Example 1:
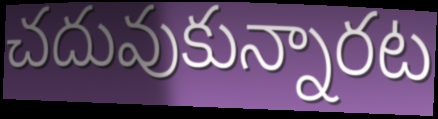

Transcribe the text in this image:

చదువుకున్నారట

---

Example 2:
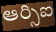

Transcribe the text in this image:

ఆర్సిఐ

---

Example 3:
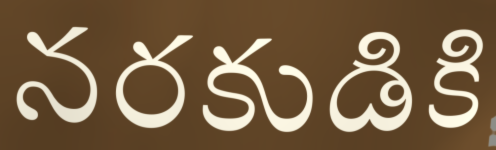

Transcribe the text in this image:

నరకుడికి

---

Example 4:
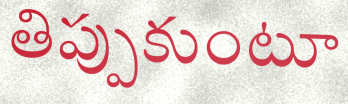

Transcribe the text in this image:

తిప్పుకుంటూ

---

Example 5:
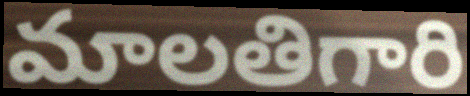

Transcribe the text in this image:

మాలతిగారి